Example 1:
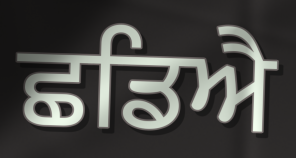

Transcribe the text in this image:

ਛਡਿਐ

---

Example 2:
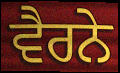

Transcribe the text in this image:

ਵੈਰਨੇ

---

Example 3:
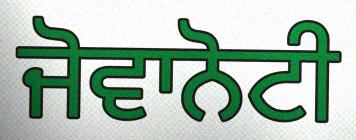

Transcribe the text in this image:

ਜੋਵਾਨੋਟੀ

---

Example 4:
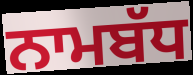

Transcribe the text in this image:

ਨਾਮਬੱਧ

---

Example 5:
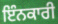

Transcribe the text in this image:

ਇੰਨਕਾਰੀ